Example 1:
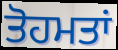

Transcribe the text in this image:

ਤੋਹਮਤਾਂ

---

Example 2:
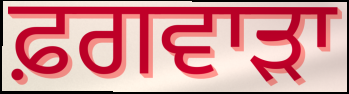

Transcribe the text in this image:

ਫ਼ਗਵਾੜਾ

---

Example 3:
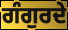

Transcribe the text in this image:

ਗੰਗੁਰਦੇ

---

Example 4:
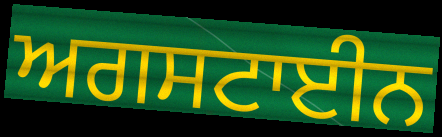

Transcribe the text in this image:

ਅਗਸਟਾਈਨ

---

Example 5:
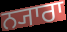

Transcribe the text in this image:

ਨ੍ਯਾਰਾ